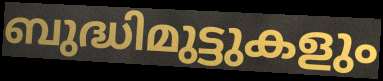
ബുദ്ധിമുട്ടുകളും